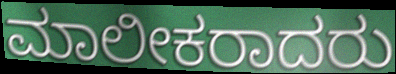
ಮಾಲೀಕರಾದರು